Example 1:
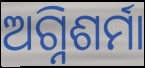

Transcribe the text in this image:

ଅଗ୍ନିଶର୍ମା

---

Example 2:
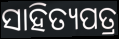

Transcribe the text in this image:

ସାହିତ୍ୟପତ୍ର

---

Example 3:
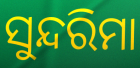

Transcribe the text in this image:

ସୁନ୍ଦରିମା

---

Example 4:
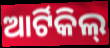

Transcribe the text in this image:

ଆର୍ଟିକିଲ୍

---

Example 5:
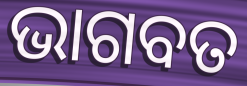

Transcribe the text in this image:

ଭାଗବତ